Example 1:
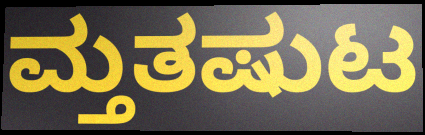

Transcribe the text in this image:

ಮ್ತತಷುಟ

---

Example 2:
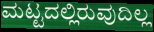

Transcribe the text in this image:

ಮಟ್ಟದಲ್ಲಿರುವುದಿಲ್ಲ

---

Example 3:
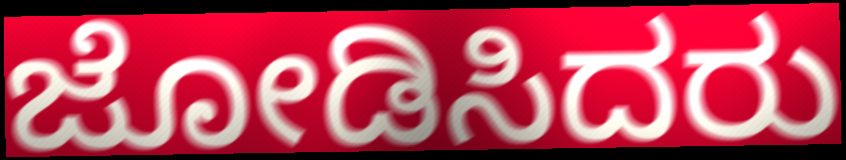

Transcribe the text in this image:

ಜೋಡಿಸಿದರು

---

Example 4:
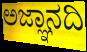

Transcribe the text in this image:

ಅಜ್ಞಾನದಿ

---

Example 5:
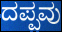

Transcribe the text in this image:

ದಪ್ಪವು